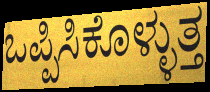
ಒಪ್ಪಿಸಿಕೊಳ್ಳುತ್ತ